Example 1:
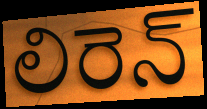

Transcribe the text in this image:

లిరెన్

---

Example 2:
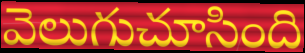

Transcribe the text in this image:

వెలుగుచూసింది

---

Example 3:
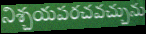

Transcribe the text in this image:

నిశ్చయపరచవచ్చును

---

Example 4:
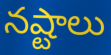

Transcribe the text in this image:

నష్టాలు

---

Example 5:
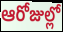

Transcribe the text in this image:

ఆరోజుల్లో